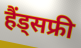
हैंड्सफ्री